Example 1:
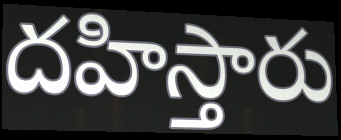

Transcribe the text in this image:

దహిస్తారు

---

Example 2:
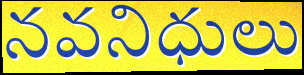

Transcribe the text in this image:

నవనిధులు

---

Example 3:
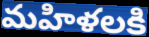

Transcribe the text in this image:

మహిళలకి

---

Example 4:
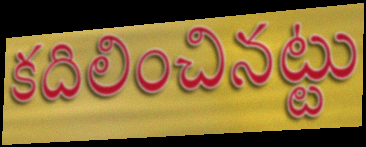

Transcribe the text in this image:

కదిలించినట్టు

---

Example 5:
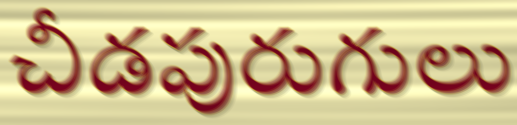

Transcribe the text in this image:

చీడపురుగులు